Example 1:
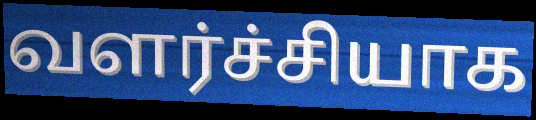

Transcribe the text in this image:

வளர்ச்சியாக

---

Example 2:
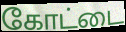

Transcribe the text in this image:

கோட்டை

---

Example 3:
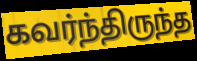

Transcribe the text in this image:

கவர்ந்திருந்த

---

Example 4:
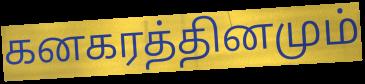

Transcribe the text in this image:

கனகரத்தினமும்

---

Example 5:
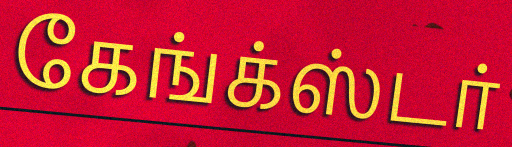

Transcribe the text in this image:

கேங்க்ஸ்டர்